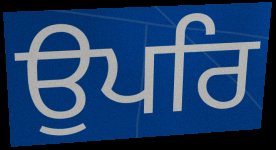
ਉਪਰਿ